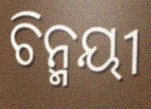
ଚିନ୍ମୟୀ